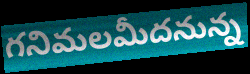
గనిమలమీదనున్న